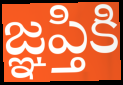
జ్ఞప్తికి